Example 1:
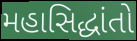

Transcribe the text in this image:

મહાસિદ્ધાંતો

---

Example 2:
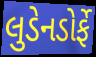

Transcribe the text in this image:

લુડેનડોર્ફે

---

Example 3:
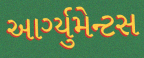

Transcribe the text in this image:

આર્ગ્યુમેન્ટસ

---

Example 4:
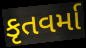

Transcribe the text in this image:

કૃતવર્મા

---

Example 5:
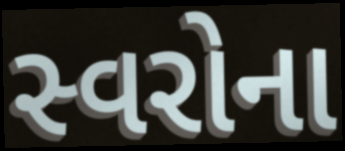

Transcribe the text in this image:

સ્વરોના